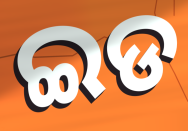
ଇଡ